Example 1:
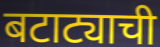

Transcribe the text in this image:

बटाट्याची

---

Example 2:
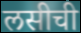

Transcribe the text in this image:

लसीची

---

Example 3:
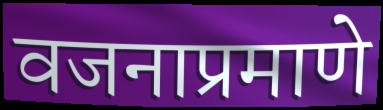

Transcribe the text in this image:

वजनाप्रमाणे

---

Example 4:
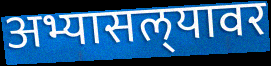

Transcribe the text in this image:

अभ्यासल्यावर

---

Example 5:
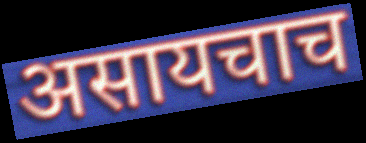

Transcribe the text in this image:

असायचाच